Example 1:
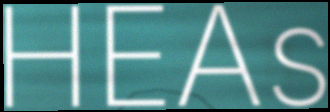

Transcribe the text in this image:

HEAs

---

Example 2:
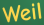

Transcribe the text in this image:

Weil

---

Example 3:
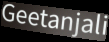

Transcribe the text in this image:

Geetanjali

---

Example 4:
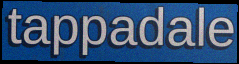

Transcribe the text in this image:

tappadale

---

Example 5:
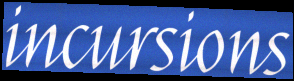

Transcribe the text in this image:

incursions